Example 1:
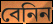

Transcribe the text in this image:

বেনিন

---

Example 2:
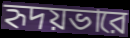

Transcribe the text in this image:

হৃদয়ভারে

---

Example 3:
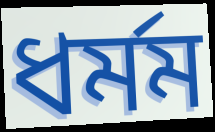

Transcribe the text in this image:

ধর্মম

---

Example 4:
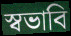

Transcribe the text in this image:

স্বভাবি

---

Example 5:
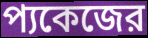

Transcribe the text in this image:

প্যকেজের